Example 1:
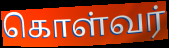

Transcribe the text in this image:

கொள்வர்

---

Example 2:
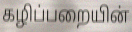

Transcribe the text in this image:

கழிப்பறையின்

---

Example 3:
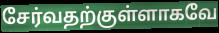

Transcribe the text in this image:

சேர்வதற்குள்ளாகவே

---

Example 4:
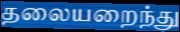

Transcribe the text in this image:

தலையறைந்து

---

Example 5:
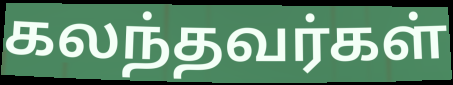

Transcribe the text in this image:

கலந்தவர்கள்